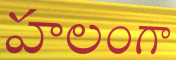
హలంగా